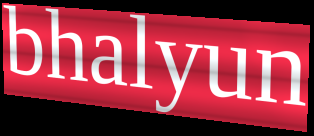
bhalyun